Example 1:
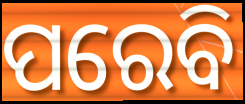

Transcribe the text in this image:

ପରେବି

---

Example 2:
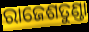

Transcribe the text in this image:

ରାଜେଶତୁଣ୍ଡା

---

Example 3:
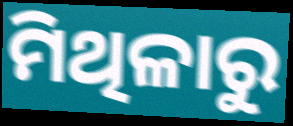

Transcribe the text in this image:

ମିଥିଳାରୁ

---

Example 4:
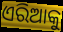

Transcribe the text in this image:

ଏରିଆକୁ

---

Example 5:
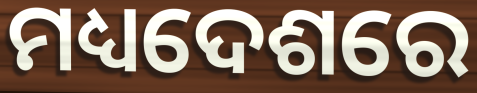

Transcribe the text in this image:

ମଧ୍ୟଦେଶରେ